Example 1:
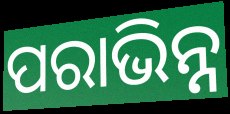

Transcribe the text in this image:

ପରାଭିନ୍ନ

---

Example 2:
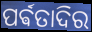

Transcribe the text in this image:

ପର୍ଵତାଦିର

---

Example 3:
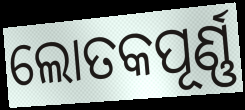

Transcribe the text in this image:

ଲୋତକପୂର୍ଣ୍ଣ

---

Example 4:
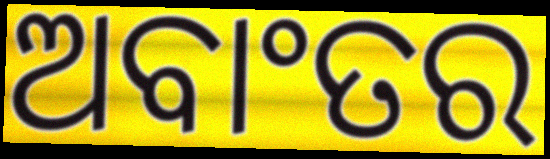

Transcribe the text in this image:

ଅବାଂତର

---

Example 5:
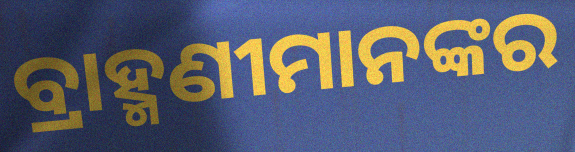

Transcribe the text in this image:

ବ୍ରାହ୍ମଣୀମାନଙ୍କର